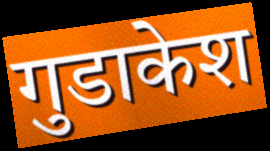
गुडाकेश